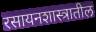
रसायनशास्त्रातील